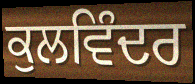
ਕੁਲਵਿੰਦਰ